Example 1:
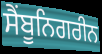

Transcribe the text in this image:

ਸੈਂਬੂਨਿਗਰੀਨ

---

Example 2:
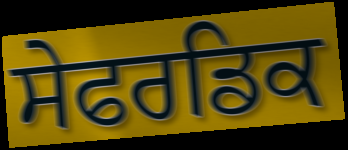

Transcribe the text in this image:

ਸੇਫਰਡਿਕ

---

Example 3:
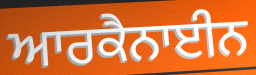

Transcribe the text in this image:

ਆਰਕੈਨਾਈਨ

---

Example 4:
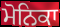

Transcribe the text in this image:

ਮੋਨਿਕਾ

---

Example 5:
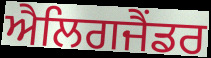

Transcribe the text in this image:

ਐਲਿਗਜੈਂਡਰ